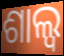
ଶାଲ୍ୱ